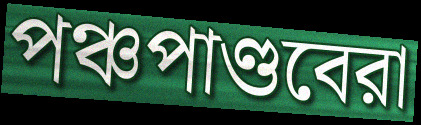
পঞ্চপাণ্ডবেরা